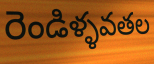
రెండిళ్ళవతల